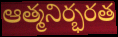
ఆత్మనిర్భరత